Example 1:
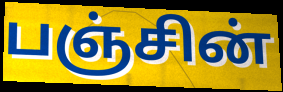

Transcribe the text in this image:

பஞ்சின்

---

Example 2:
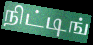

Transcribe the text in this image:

நிட்டிங்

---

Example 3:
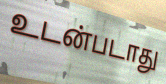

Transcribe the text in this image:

உடன்படாது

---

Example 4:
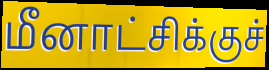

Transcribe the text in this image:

மீனாட்சிக்குச்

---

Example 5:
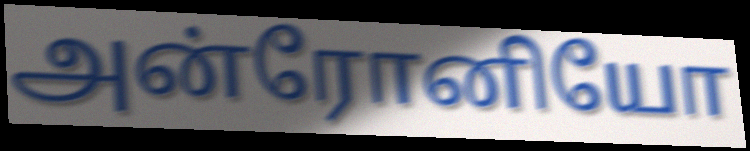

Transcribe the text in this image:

அன்ரோனியோ